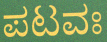
ಪಟವಃ